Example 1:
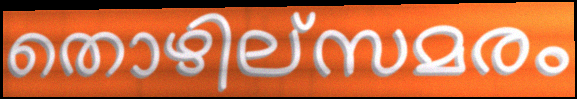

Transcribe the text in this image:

തൊഴില്സമരം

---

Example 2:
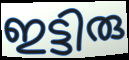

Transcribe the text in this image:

ഇട്ടിരു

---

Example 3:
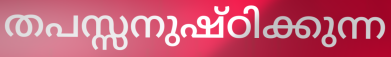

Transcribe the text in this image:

തപസ്സനുഷ്ഠിക്കുന്ന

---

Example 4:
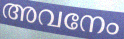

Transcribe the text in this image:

അവനേം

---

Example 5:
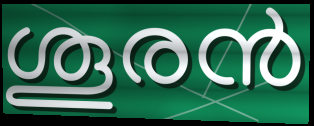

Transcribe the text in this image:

ശൂരൻ